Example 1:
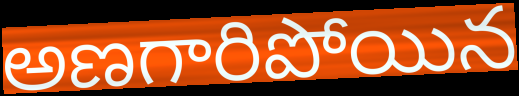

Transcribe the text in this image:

అణగారిపోయిన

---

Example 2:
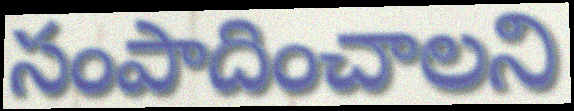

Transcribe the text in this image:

సంపాదించాలని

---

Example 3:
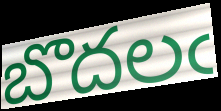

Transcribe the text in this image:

బొదలఁ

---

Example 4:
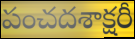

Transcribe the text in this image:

పంచదశాక్షరీ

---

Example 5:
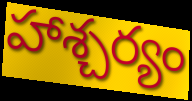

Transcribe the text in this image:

హాశ్చర్యం